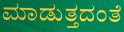
ಮಾಡುತ್ತದಂತೆ